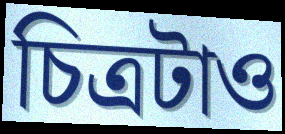
চিত্রটাও